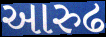
આરુઢ